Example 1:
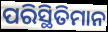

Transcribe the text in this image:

ପରିସ୍ଥିତିମାନ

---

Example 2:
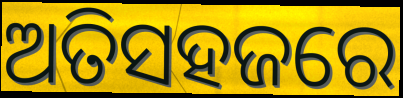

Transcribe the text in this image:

ଅତିସହଜରେ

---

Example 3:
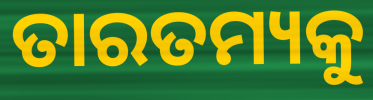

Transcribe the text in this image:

ତାରତମ୍ୟକୁ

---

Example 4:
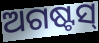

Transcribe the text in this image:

ଅଗଷ୍ଟସ୍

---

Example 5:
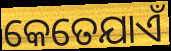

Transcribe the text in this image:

କେତେଯାଏଁ